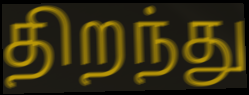
திறந்து